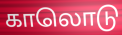
காலொடு